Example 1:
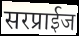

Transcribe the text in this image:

सरप्राईज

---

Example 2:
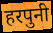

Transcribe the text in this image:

हरपुनी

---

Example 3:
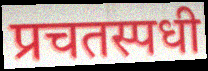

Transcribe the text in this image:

प्रचतस्पधी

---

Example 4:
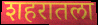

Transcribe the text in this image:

शहरातला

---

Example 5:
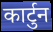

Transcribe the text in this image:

कार्टुन